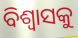
ବିଶ୍ୱାସକୁ